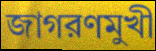
জাগরণমুখী